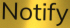
Notify